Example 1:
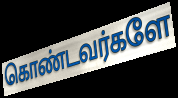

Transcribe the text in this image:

கொண்டவர்களே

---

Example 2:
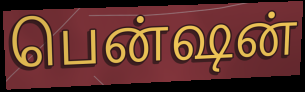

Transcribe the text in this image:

பென்ஷன்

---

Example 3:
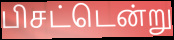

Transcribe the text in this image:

பிசட்டென்று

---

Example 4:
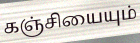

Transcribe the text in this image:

கஞ்சியையும்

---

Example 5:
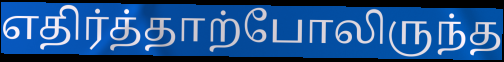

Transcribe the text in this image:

எதிர்த்தாற்போலிருந்த